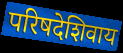
परिषदेशिवाय